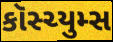
કૉસ્ચ્યુમ્સ